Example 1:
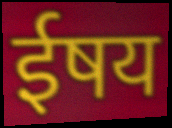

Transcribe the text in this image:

ईषय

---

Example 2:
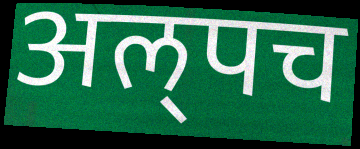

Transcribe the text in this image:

अल्पच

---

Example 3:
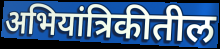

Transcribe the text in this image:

अभियांत्रिकीतील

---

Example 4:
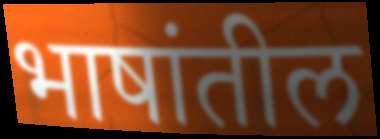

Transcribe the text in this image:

भाषांतील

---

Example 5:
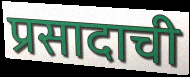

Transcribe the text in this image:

प्रसादाची